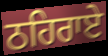
ਠਹਿਰਾਏ